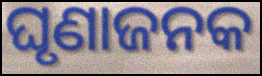
ଘୃଣାଜନକ